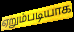
ஏறும்படியாக